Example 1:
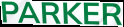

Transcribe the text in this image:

PARKER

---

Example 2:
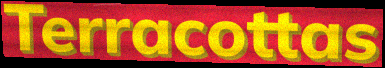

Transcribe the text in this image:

Terracottas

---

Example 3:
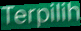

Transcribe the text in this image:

Terpilih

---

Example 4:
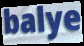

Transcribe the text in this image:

balye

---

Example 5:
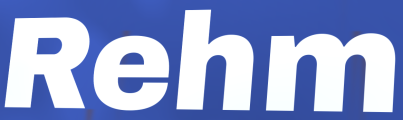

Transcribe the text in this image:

Rehm